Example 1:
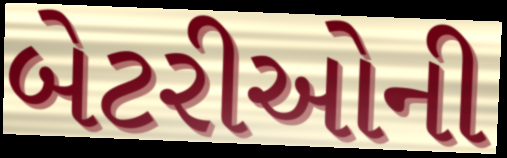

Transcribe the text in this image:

બેટરીઓની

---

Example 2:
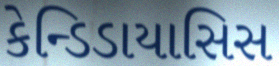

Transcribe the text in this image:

કેન્ડિડાયાસિસ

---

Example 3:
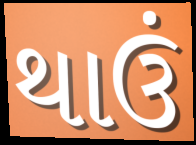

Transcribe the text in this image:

થાઉં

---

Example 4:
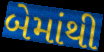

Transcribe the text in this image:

બેમાંથી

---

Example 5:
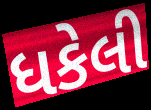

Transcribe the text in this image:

ધકેલી